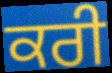
ਕਰੀ